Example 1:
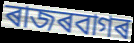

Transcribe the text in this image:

ৰাজৰবাগৰ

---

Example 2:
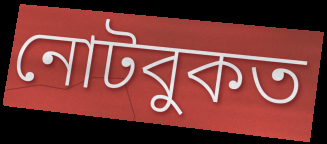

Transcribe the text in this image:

নোটবুকত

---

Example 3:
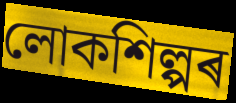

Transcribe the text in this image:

লোকশিল্পৰ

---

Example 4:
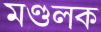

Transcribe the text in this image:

মণ্ডলক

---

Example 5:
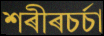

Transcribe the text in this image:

শৰীৰচৰ্চা